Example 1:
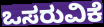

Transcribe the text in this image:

ಒಸರುವಿಕೆ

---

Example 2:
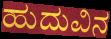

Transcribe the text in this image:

ಹುದುವಿನ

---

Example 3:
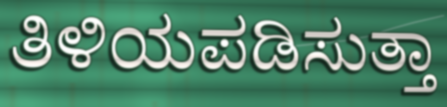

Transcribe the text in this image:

ತಿಳಿಯಪಡಿಸುತ್ತಾ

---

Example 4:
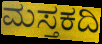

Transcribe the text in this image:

ಮಸ್ತಕದಿ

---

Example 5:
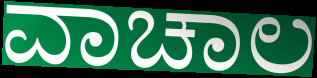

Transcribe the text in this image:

ವಾಚಾಲ